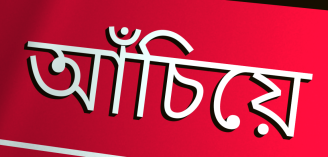
আঁচিয়ে